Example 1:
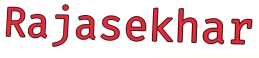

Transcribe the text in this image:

Rajasekhar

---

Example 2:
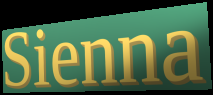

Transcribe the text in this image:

Sienna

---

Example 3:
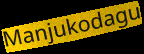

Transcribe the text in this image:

Manjukodagu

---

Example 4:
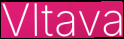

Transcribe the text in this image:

Vltava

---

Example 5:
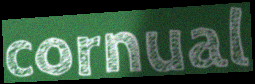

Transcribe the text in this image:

cornual